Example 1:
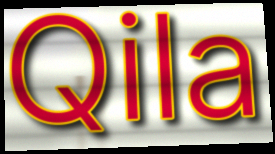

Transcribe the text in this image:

Qila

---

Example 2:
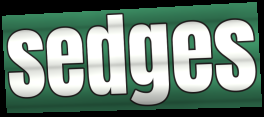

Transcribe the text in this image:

sedges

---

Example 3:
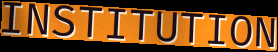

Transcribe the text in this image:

INSTITUTION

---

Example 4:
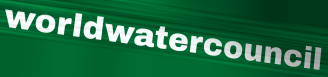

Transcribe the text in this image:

worldwatercouncil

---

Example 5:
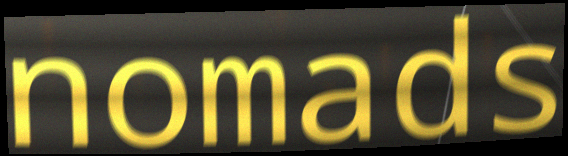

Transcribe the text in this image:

nomads